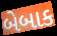
બેબાક